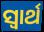
ସ୍ୱାର୍ଥ